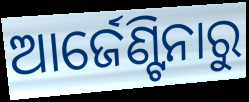
ଆର୍ଜେଣ୍ଟିନାରୁ